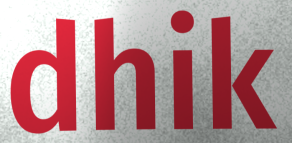
dhik